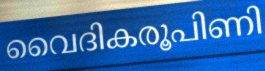
വൈദികരൂപിണി